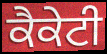
ਕੈਕੇਟੀ